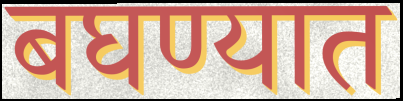
बघण्यात